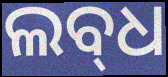
ଲବ୍‍ଧ